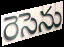
రెసెను